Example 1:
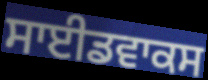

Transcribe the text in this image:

ਸਾਈਡਵਾਕਸ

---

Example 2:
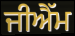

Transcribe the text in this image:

ਜੀਐੱਮ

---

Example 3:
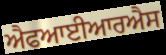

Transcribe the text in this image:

ਐਫਆਈਆਰਐਸ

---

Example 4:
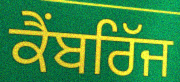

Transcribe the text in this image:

ਕੈਂਬਰਿੱਜ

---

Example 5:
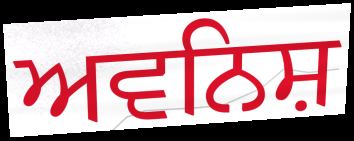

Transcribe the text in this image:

ਅਵਨਿਸ਼